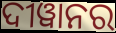
ଦୀୱାନର